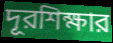
দূরশিক্ষার